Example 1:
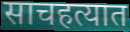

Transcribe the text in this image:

साचहत्यात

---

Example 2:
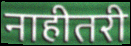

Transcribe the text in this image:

नाहीतरी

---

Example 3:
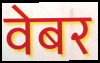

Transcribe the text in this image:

वेबर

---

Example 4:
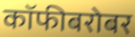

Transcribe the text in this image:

कॉफीबरोबर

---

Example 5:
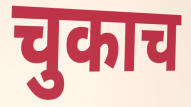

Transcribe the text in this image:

चुकाच